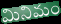
మినిమం